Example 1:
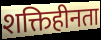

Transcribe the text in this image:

शक्तिहीनता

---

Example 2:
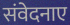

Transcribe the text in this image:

संवेदनाए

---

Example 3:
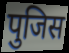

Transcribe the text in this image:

पुजिस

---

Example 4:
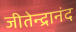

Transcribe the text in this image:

जीतेन्द्रानंद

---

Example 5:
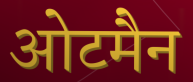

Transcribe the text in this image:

ओटमैन